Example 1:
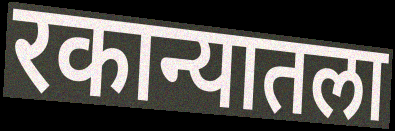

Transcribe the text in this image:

रकान्यातला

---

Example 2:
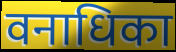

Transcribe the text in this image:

वनाधिका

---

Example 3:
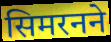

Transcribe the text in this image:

सिमरनने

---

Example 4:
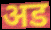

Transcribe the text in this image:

अड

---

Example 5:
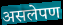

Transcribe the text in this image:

असलेपण